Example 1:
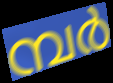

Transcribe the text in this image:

മ്പർ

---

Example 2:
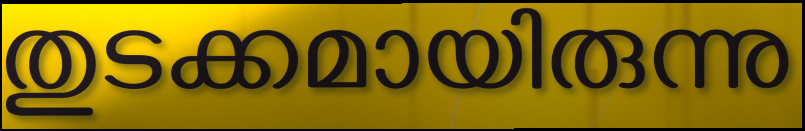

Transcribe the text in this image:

തുടക്കമായിരുന്നു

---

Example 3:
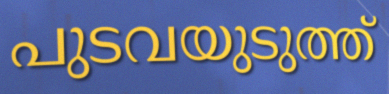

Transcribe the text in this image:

പുടവയുടുത്ത്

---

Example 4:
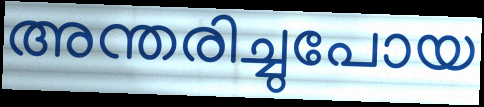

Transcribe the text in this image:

അന്തരിച്ചുപോയ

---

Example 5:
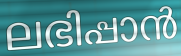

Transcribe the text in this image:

ലഭിപ്പാൻ